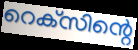
റെക്‌സിന്റെ